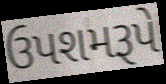
ઉપશમરૂપે